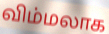
விம்மலாக